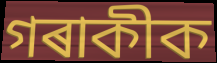
গৰাকীক